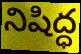
నిషిద్ధ